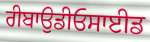
ਰੀਬਾਉਡੀਓਸਾਈਡ